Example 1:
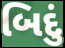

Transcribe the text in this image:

બિદું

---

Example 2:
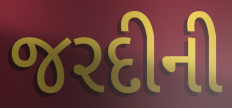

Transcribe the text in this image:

જરદીની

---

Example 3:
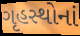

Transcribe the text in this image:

ગૃહસ્થોનાં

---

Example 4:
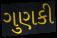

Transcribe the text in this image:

ગુણકી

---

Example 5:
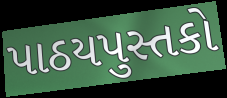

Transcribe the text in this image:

પાઠયપુસ્તકો